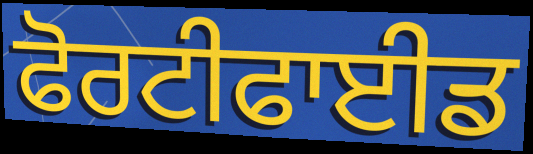
ਫੋਰਟੀਫਾਈਡ